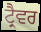
ਟ੍ਰੈਵਰ